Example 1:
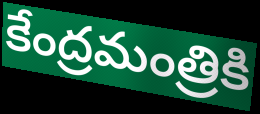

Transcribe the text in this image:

కేంద్రమంత్రికి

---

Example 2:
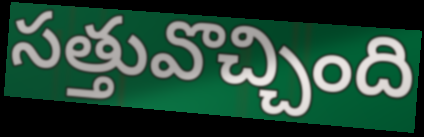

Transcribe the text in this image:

సత్తువొచ్చింది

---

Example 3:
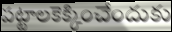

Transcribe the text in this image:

పట్టాలకెక్కించేందుకు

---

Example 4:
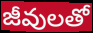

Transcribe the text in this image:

జీవులతో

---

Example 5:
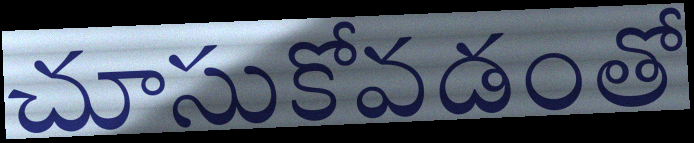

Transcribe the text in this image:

చూసుకోవడంతో